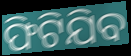
ଫିଟିଯିବ